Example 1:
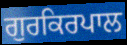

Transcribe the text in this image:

ਗੁਰਕਿਰਪਾਲ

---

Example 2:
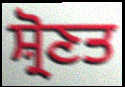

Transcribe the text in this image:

ਸ਼੍ਰੋਣਤ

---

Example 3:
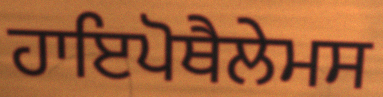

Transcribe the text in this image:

ਹਾਇਪੋਥੈਲੇਮਸ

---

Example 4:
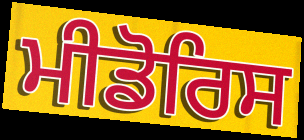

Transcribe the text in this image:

ਮੀਡੋਰਿਸ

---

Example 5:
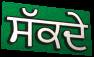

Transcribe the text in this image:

ਸੱਕਦੇ